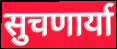
सुचणार्या